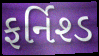
ફર્નિશ્ડ